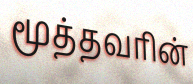
மூத்தவரின்